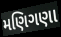
મણિગણા